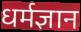
धर्मज्ञान